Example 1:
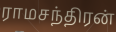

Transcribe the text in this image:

ராமசந்திரன்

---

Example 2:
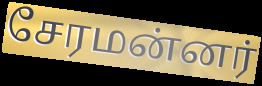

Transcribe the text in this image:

சேரமன்னர்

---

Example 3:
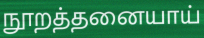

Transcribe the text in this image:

நூறத்தனையாய்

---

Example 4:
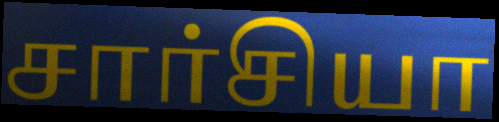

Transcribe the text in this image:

சார்சியா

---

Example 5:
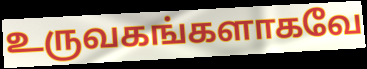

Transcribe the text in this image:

உருவகங்களாகவே